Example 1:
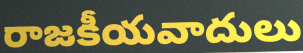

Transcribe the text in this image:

రాజకీయవాదులు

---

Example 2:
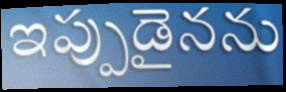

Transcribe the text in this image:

ఇప్పుడైనను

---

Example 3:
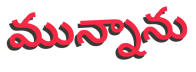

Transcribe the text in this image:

మున్నాను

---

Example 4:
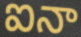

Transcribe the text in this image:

ఐనా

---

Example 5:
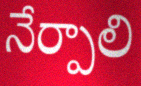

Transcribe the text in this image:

నేర్పాలి